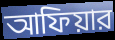
আফিয়ার